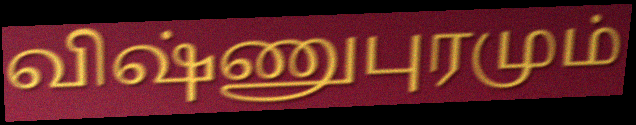
விஷ்ணுபுரமும்